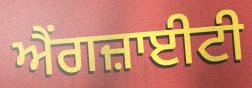
ਐਂਗਜ਼ਾਈਟੀ